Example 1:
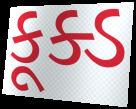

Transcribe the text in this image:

કૂક્ડ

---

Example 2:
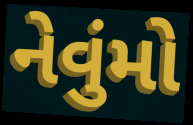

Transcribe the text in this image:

નેવુંમો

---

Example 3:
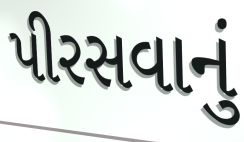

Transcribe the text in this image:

પીરસવાનું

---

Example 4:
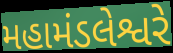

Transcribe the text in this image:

મહામંડલેશ્વરે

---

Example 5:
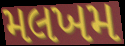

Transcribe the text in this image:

મલખમ